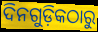
ଦିନଗୁଡ଼ିକଠାରୁ